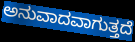
ಅನುವಾದವಾಗುತ್ತದೆ